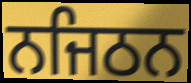
ਨਜਿਠਨ